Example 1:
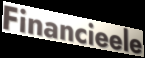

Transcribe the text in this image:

Financieele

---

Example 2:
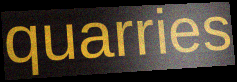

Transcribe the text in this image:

quarries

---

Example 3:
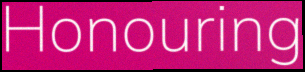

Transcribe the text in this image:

Honouring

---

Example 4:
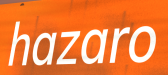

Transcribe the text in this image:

hazaro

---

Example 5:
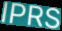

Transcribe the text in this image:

IPRS